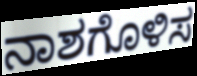
ನಾಶಗೊಳಿಸ